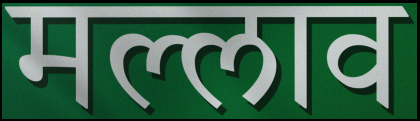
मल्लाव